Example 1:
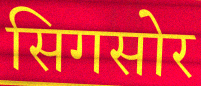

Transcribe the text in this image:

सिगसोर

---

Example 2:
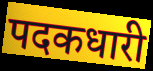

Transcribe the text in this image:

पदकधारी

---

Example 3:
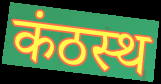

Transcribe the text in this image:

कंठस्थ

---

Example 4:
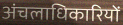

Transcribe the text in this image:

अंचलाधिकारियों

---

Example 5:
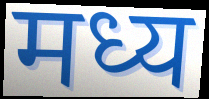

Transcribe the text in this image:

मध्य